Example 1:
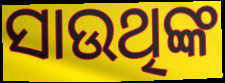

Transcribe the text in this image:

ସାଉଥିଙ୍କ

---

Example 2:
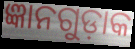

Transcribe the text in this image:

ଜ୍ଞାନଗୁଡ଼ାକ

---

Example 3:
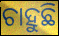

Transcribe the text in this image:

ଚାହୁଛି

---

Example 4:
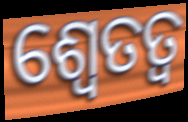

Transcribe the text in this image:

ଶ୍ୱେତତ୍ଵ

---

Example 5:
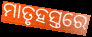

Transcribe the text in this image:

ମାତୃହସ୍ତରେ